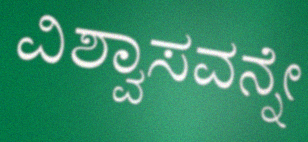
ವಿಶ್ವಾಸವನ್ನೇ